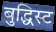
बुद्धिस्ट